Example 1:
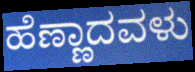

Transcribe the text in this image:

ಹೆಣ್ಣಾದವಳು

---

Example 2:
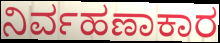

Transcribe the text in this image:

ನಿರ್ವಹಣಾಕಾರ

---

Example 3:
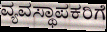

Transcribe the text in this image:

ವ್ಯವಸ್ಥಾಪಕರಿಗೆ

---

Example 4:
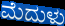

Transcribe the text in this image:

ಮೆದುಳು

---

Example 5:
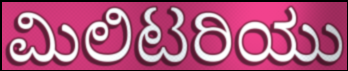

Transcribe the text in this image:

ಮಿಲಿಟರಿಯು